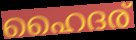
ഹൈദര്